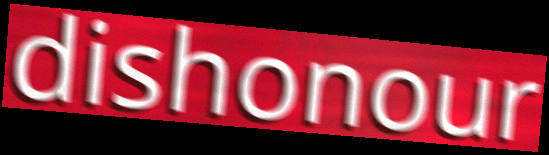
dishonour